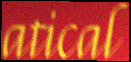
atical